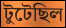
টুটেছিল